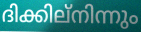
ദിക്കില്നിന്നും